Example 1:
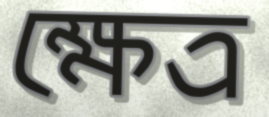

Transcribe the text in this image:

ক্ষেত্ৰ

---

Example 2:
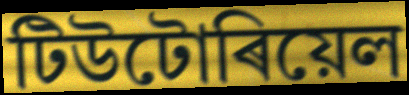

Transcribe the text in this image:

টিউটোৰিয়েল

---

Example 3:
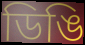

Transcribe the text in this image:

ডিঙি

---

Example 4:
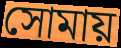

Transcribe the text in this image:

সোমায়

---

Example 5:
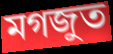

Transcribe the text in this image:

মগজুত